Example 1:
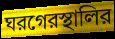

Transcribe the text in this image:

ঘরগেরস্থালির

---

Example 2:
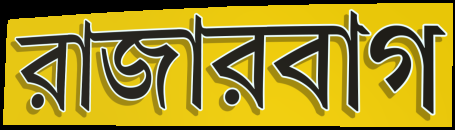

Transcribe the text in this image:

রাজারবাগ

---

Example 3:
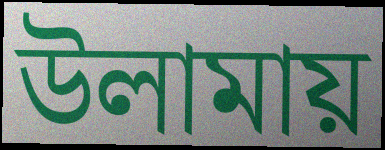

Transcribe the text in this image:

উলামায়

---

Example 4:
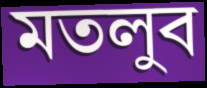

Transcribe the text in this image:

মতলুব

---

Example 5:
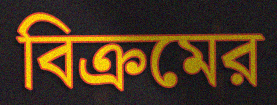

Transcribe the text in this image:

বিক্রমের